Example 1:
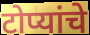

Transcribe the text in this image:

टोप्यांचे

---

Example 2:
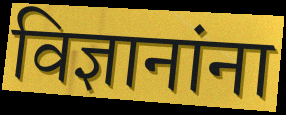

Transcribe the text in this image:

विज्ञानांना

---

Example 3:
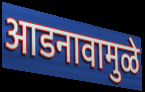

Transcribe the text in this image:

आडनावामुळे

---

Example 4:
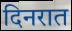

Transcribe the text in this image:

दिनरात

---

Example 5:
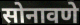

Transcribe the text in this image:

सोनावणे